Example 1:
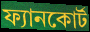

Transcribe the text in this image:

ফ্যানকোর্ট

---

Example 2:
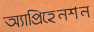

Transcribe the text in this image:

অ্যাপ্রিহেনশন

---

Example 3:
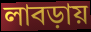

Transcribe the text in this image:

লাবড়ায়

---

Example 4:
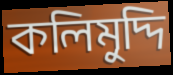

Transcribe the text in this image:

কলিমুদ্দি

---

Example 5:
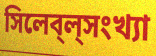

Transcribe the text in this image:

সিলেব্‌ল্‌সংখ্যা